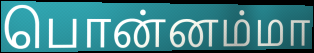
பொன்னம்மா